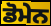
ਡੋਮੇਨ